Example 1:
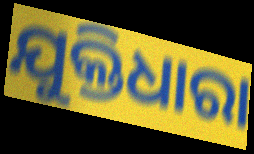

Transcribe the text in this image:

ଯୁକ୍ତିଧାରା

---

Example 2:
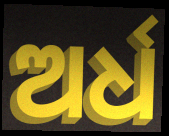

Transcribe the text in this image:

ଅର୍ଧ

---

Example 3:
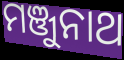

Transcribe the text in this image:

ମଞ୍ଜୁନାଥ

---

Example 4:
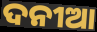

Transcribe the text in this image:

ଦନୀଆ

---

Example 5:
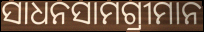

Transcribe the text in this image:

ସାଧନସାମଗ୍ରୀମାନ